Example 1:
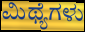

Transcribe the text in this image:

ಮಿಥ್ಯೆಗಳು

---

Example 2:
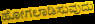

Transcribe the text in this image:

ಹೋಗಲಾಡಿಸುವುದು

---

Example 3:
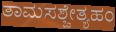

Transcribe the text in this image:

ತಾಮಸಶ್ಚೇತ್ಯಹಂ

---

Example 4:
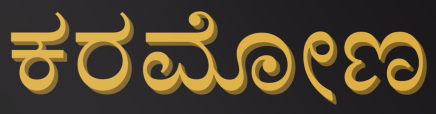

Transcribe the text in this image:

ಕರಮೋಣ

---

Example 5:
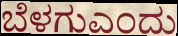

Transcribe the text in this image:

ಬೆಳಗುಎಂದು